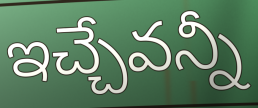
ఇచ్చేవన్నీ